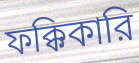
ফক্কিকারি